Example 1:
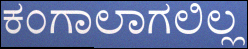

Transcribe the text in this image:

ಕಂಗಾಲಾಗಲಿಲ್ಲ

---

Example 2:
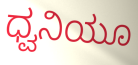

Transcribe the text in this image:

ಧ್ವನಿಯೂ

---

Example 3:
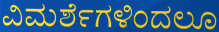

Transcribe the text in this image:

ವಿಮರ್ಶೆಗಳಿಂದಲೂ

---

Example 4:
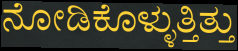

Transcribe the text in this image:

ನೋಡಿಕೊಳ್ಳುತ್ತಿತ್ತು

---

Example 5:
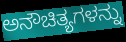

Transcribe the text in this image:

ಅನೌಚಿತ್ಯಗಳನ್ನು